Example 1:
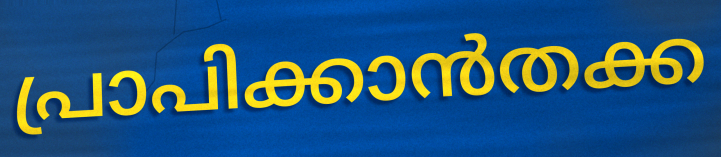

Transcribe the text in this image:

പ്രാപിക്കാൻതക്ക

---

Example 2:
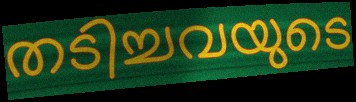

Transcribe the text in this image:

തടിച്ചവയുടെ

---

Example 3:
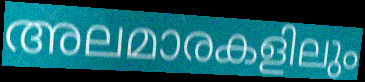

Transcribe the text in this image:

അലമാരകളിലും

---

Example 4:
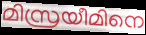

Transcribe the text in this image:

മിസ്രയീമിനെ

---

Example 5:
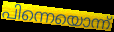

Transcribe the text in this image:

പിന്നെയൊന്ന്